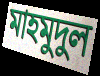
মাহমুদুল